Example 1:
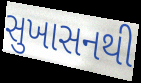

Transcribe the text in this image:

સુખાસનથી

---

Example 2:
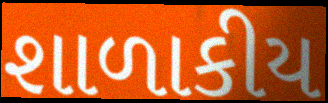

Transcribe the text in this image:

શાળાકીય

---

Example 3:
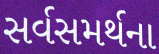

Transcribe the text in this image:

સર્વસમર્થના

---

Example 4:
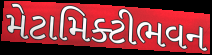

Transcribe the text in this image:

મેટામિક્ટીભવન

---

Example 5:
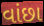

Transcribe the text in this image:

વાંછા